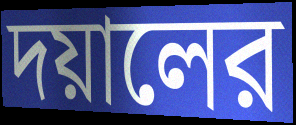
দয়ালের